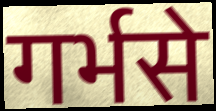
गर्भसे